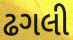
ઢગલી